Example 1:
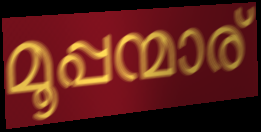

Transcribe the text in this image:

മൂപ്പന്മാര്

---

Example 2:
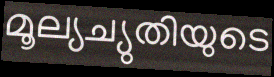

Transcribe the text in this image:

മൂല്യച്യുതിയുടെ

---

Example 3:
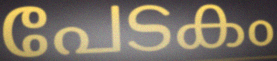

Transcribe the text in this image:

പേടകം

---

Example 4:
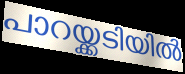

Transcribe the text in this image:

പാറയ്ക്കടിയിൽ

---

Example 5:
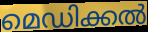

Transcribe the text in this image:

മെഡിക്കൽ